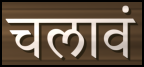
चलावं